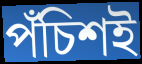
পঁচিশই